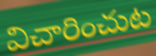
విచారించుట